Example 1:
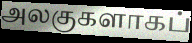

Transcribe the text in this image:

அலகுகளாகப்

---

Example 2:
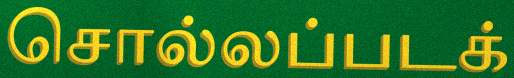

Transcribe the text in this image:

சொல்லப்படக்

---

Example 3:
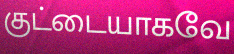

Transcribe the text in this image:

குட்டையாகவே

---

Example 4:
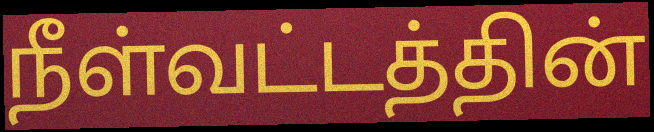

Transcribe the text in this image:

நீள்வட்டத்தின்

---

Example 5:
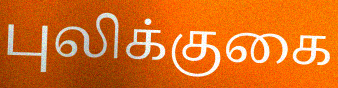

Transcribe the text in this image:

புலிக்குகை